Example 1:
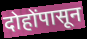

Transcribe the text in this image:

दोहोंपासून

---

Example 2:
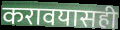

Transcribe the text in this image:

करावयासही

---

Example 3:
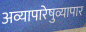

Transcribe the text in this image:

अव्यापारेषुव्यापार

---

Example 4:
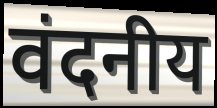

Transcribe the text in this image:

वंदनीय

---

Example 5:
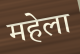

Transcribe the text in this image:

महेला